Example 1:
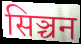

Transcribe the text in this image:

सिञ्चन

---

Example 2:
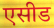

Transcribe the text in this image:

एसीड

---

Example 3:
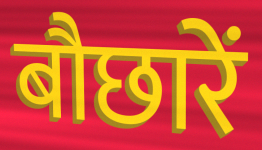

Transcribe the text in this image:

बौछारें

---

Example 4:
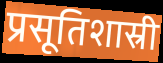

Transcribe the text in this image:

प्रसूतिशास्री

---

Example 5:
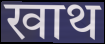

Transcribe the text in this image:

खाथ